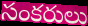
సంకరులు